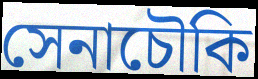
সেনাচৌকি